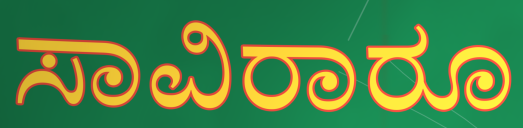
ಸಾವಿರಾರೂ